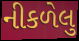
નીકળેલુ